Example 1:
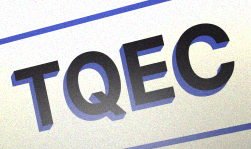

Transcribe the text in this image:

TQEC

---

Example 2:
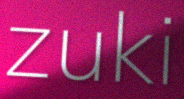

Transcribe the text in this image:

zuki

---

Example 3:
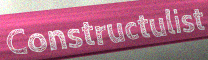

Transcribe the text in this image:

Constructulist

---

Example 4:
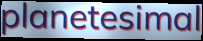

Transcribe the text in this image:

planetesimal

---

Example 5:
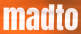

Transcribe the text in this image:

madto